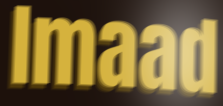
Imaad